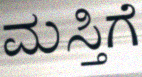
ಮಸ್ತಿಗೆ